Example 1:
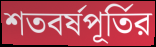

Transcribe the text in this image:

শতবর্ষপূর্তির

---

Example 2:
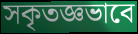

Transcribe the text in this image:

সকৃতজ্ঞভাবে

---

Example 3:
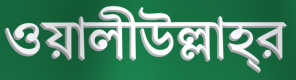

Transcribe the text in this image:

ওয়ালীউল্লাহ্‌র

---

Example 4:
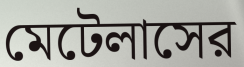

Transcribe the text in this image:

মেটেলাসের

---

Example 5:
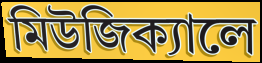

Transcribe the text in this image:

মিউজিক্যালে